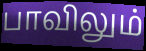
பாவிலும்